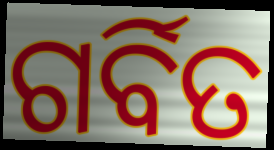
ଗର୍ବିତ